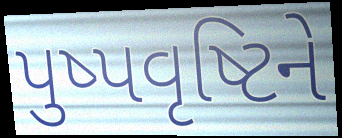
પુષ્પવૃષ્ટિને